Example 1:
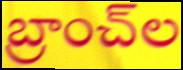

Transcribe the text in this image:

బ్రాంచ్‌ల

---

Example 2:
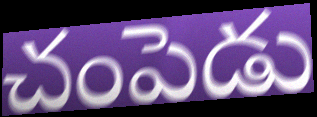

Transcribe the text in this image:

చంపెడు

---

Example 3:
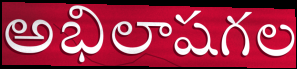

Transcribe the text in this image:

అభిలాషగల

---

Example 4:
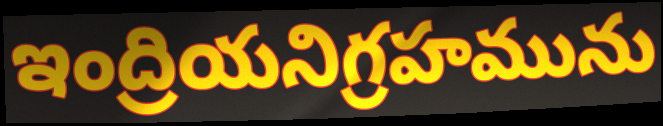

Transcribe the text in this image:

ఇంద్రియనిగ్రహమును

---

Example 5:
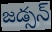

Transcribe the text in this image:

జడ్సన్